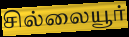
சில்லையூர்